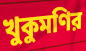
খুকুমণির